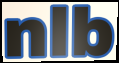
nlb